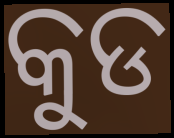
କୁଡ